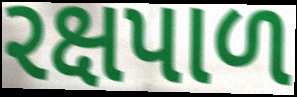
રક્ષપાળ